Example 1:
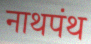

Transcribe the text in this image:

नाथपंथ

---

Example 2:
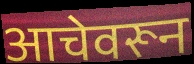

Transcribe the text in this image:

आचेवरून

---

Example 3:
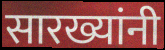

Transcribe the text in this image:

सारख्यांनी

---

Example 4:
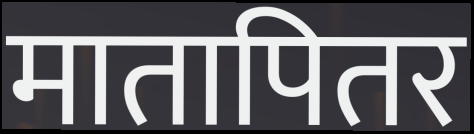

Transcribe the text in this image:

मातापितर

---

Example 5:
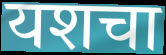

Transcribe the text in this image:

यशचा